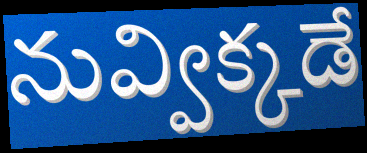
నువ్విక్కడే